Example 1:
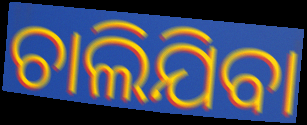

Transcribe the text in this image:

ଚାଲିଯିବା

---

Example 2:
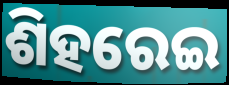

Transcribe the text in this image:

ଶିହରେଇ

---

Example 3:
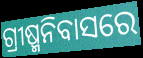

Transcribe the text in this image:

ଗ୍ରୀଷ୍ମନିବାସରେ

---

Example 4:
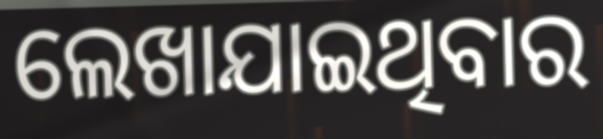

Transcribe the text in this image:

ଲେଖାଯାଇଥିବାର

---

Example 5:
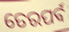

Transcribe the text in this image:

ତେରପର୍ବ